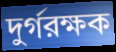
দুর্গরক্ষক